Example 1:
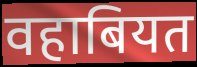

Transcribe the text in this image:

वहाबियत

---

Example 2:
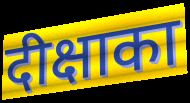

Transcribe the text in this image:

दीक्षाका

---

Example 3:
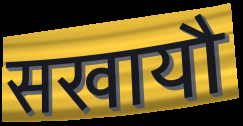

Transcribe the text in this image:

सखायौ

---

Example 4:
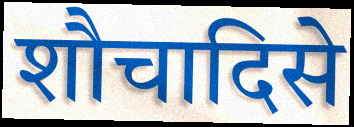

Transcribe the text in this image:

शौचादिसे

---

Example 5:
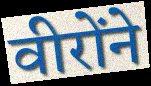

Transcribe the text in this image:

वीरोंने